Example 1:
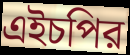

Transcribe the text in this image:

এইচপির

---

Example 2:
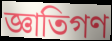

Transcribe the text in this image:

জ্ঞাতিগণ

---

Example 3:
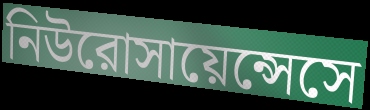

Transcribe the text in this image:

নিউরোসায়েন্সেসে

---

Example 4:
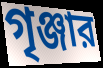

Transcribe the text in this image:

গৃঞ্জার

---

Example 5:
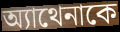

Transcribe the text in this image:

অ্যাথেনাকে